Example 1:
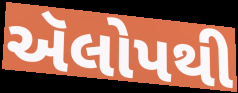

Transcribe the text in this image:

ઍલોપથી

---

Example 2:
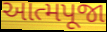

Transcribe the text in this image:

આત્મપૂજા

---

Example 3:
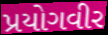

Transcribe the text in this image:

પ્રયોગવીર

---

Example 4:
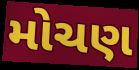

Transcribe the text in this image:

મોચણ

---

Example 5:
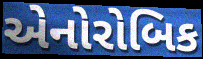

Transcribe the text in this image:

એનોરોબિક